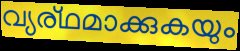
വ്യര്ഥമാക്കുകയും